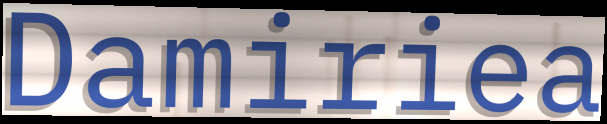
Damiriea